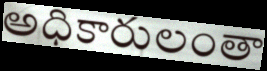
అధికారులంతా